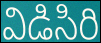
విడిసిరి